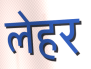
लेहर